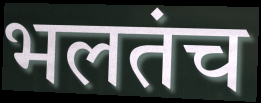
भलतंच